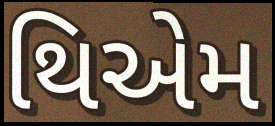
થિએમ